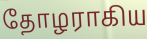
தோழராகிய